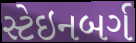
સ્ટેઇનબર્ગ